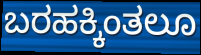
ಬರಹಕ್ಕಿಂತಲೂ